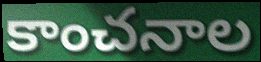
కాంచనాల